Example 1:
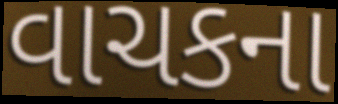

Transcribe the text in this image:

વાચકના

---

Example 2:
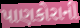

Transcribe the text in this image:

પાણકોરાની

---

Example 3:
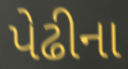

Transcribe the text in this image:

પેઢીના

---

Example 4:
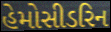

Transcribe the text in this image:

હેમોસીડરિન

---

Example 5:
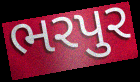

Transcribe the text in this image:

ભરપુર